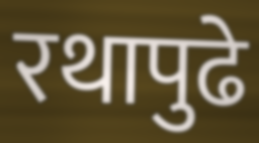
रथापुढे